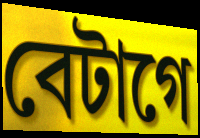
বেটাগে